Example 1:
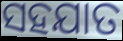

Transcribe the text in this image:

ସହଯାତ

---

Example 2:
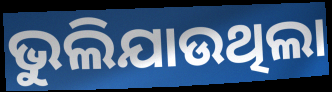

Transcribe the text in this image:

ଭୁଲିଯାଉଥିଲା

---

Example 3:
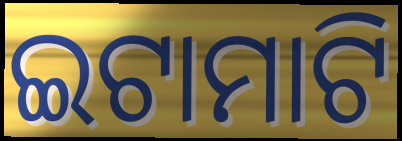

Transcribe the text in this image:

ଇଟାମାଟି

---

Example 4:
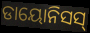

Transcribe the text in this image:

ଡାୟୋନିସସ୍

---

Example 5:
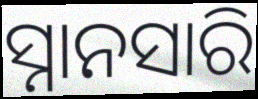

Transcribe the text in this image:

ସ୍ନାନସାରି